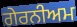
ਗੇਰਨੀਅਮ